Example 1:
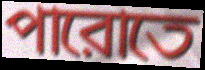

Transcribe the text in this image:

পারোতে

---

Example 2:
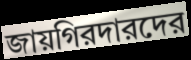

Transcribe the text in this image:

জায়গিরদারদের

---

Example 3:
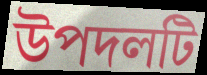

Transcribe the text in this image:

উপদলটি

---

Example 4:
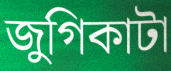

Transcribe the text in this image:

জুগিকাটা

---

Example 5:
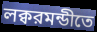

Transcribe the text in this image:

লক্বরমন্ডীতে